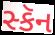
સ્કૅન